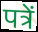
पत्रें